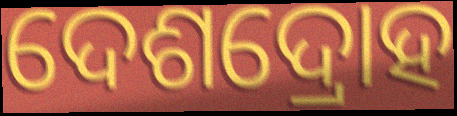
ଦେଶଦ୍ରୋହ